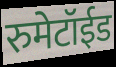
रुमेटॉईड